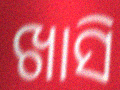
ଖାସି